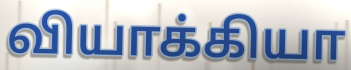
வியாக்கியா